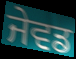
ਜੇਵਡ